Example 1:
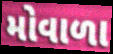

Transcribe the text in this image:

મોવાળા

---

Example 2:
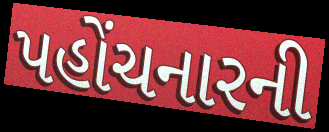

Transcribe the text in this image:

પહોંચનારની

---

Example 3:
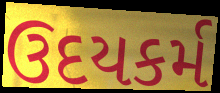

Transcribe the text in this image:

ઉદયકર્મ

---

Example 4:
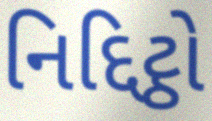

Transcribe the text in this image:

નિદ્દિટ્ઠો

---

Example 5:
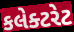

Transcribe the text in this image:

કલેક્ટરેટ